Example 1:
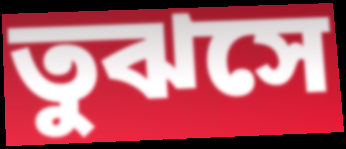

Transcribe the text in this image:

তুঝসে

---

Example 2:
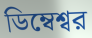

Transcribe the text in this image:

ডিম্বেশ্বর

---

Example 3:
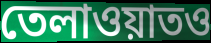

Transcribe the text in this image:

তেলাওয়াতও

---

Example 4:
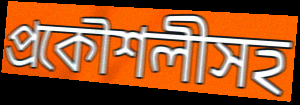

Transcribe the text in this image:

প্রকৌশলীসহ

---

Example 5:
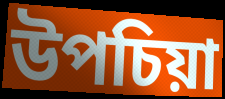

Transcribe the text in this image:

উপচিয়া